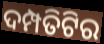
ଦମ୍ପତିଟିର